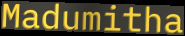
Madumitha